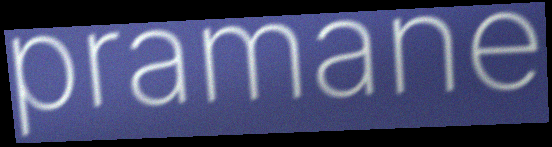
pramane